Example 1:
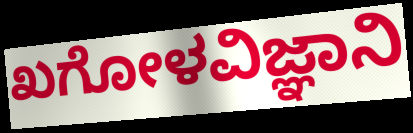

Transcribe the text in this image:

ಖಗೋಳವಿಜ್ಞಾನಿ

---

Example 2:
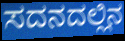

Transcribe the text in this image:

ಸದನದಲ್ಲಿನ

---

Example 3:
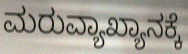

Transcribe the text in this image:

ಮರುವ್ಯಾಖ್ಯಾನಕ್ಕೆ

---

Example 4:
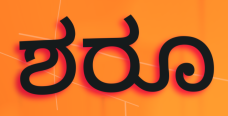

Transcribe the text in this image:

ಶರೂ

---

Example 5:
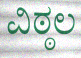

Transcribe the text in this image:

ವಿಠ್ಠಲ